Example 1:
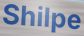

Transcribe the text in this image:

Shilpe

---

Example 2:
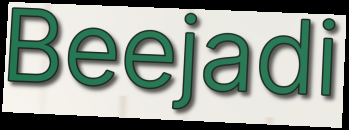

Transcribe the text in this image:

Beejadi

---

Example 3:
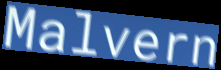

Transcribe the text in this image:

Malvern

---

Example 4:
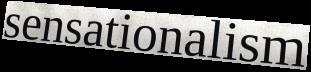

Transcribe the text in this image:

sensationalism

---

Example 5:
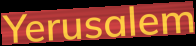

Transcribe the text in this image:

Yerusalem